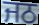
ਜਠ